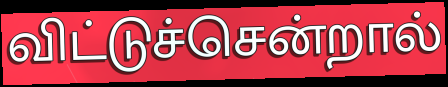
விட்டுச்சென்றால்